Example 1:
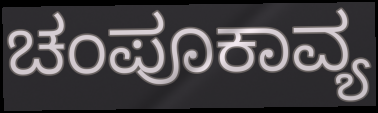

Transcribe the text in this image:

ಚಂಪೂಕಾವ್ಯ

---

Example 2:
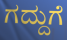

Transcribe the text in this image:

ಗದ್ದುಗೆ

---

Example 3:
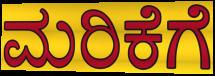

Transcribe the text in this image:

ಮರಿಕೆಗೆ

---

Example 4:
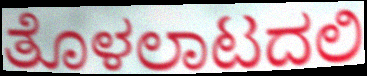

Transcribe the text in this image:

ತೊಳಲಾಟದಲಿ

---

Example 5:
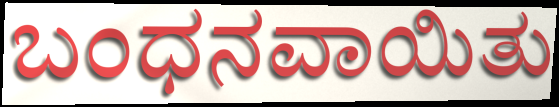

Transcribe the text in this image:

ಬಂಧನವಾಯಿತು